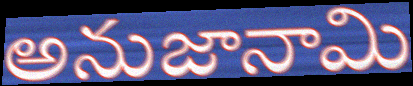
అనుజానామి